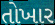
તોખાર